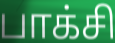
பாக்சி